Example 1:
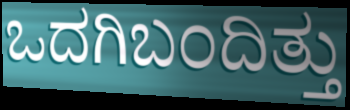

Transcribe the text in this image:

ಒದಗಿಬಂದಿತ್ತು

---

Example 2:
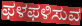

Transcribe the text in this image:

ಫಳಫಳಿಸುವ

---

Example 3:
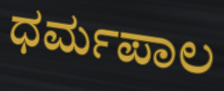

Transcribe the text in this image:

ಧರ್ಮಪಾಲ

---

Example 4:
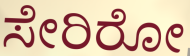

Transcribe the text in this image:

ಸೇರಿರೋ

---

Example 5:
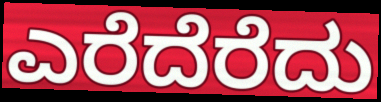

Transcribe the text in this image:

ಎರೆದೆರೆದು